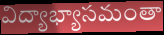
విద్యాభ్యాసమంతా